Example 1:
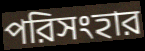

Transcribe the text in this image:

পরিসংহার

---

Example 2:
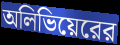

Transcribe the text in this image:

অলিভিয়েরের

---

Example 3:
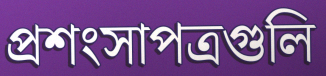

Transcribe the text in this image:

প্রশংসাপত্রগুলি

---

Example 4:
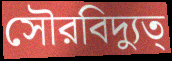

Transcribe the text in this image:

সৌরবিদ্যুত্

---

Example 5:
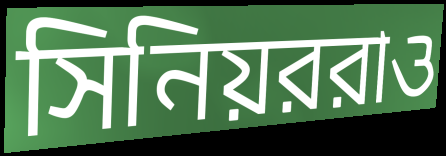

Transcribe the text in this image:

সিনিয়ররাও